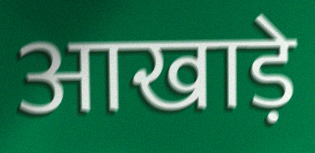
आखाड़े